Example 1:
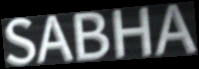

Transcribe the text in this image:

SABHA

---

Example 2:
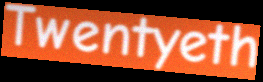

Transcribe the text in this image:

Twentyeth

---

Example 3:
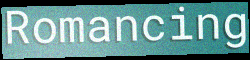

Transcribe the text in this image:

Romancing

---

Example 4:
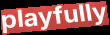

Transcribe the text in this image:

playfully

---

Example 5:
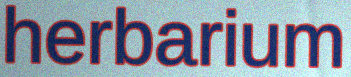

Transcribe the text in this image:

herbarium